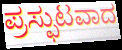
ಪ್ರಸ್ಫುಟವಾದ